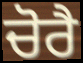
ਚੋਰੈ